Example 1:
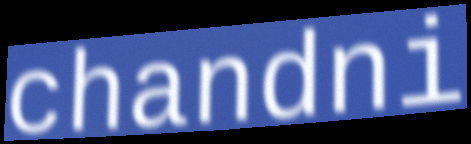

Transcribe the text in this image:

chandni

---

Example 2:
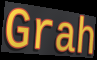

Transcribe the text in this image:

Grah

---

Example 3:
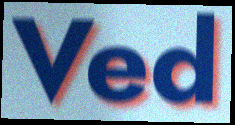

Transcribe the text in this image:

Ved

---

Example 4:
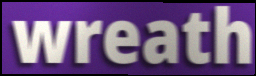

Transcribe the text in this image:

wreath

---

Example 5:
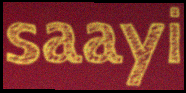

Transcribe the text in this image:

saayi